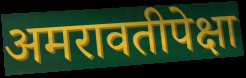
अमरावतीपेक्षा